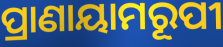
ପ୍ରାଣାୟାମରୂପୀ